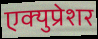
एक्युप्रेशर